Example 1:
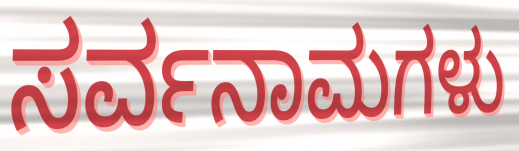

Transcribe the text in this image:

ಸರ್ವನಾಮಗಳು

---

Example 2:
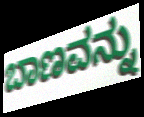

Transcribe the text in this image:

ಬಾಣವನ್ನು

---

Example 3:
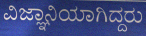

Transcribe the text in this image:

ವಿಜ್ಞಾನಿಯಾಗಿದ್ದರು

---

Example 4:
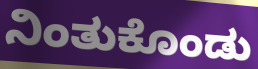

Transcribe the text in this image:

ನಿಂತುಕೊಂಡು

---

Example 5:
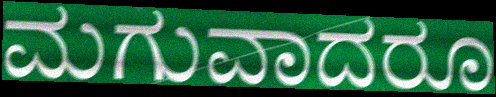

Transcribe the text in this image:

ಮಗುವಾದರೂ